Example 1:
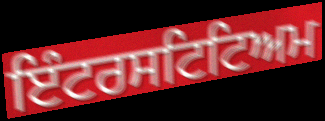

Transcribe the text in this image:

ਇੰਟਰਸਟਿਟਿਅਮ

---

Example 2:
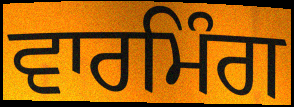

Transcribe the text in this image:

ਵਾਰਮਿੰਗ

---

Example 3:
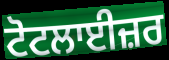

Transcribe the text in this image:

ਟੋਟਲਾਈਜ਼ਰ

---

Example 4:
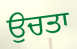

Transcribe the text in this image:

ਉਚਤਾ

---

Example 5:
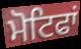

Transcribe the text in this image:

ਮੋਟਿਫਾਂ